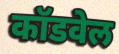
कॉडवेल